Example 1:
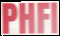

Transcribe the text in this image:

PHFI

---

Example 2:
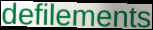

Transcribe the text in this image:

defilements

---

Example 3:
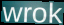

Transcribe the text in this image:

wrok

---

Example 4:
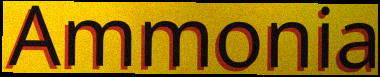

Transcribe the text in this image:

Ammonia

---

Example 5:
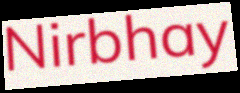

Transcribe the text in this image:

Nirbhay